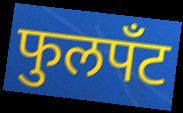
फुलपँट